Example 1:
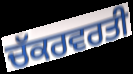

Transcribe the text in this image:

ਚੱਕਰਵਰਤੀ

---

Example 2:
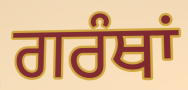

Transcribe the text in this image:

ਗਰੰਥਾਂ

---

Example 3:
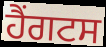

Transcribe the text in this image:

ਹੈਂਗਟਸ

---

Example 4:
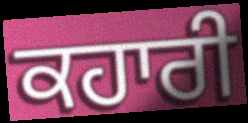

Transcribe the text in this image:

ਕਹਾਰੀ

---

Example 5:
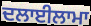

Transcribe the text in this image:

ਦਲਾਈਲਾਮਾ